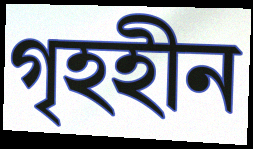
গৃহহীন